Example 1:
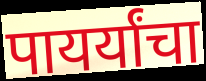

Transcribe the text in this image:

पायर्यांचा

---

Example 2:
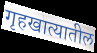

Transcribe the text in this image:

गृहखात्यातील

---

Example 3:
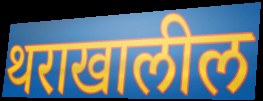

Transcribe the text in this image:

थराखालील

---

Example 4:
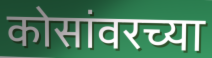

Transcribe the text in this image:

कोसांवरच्या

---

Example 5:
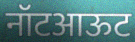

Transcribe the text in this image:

नॉटआऊट